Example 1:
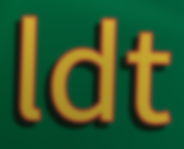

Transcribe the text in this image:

ldt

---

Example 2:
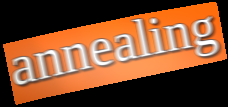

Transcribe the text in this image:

annealing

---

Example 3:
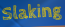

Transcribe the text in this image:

Slaking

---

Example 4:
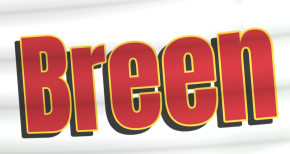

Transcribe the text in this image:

Breen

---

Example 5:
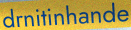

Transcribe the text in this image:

drnitinhande